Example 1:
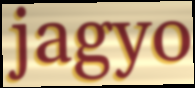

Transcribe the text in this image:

jagyo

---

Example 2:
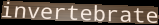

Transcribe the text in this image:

invertebrate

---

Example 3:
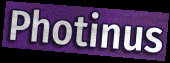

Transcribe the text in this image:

Photinus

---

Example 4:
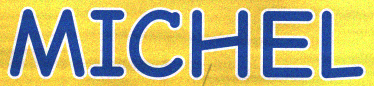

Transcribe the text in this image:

MICHEL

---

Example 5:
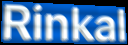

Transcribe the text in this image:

Rinkal